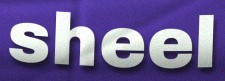
sheel